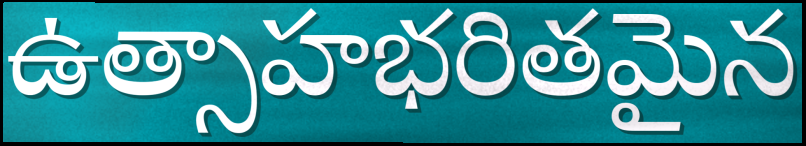
ఉత్సాహభరితమైన